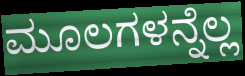
ಮೂಲಗಳನ್ನೆಲ್ಲ